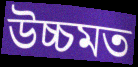
উচ্চমত